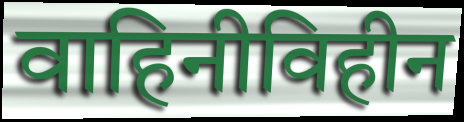
वाहिनीविहीन